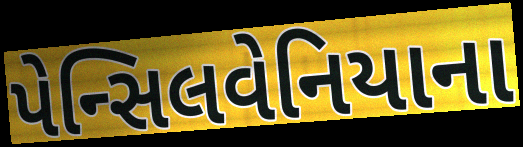
પેન્સિલવેનિયાના